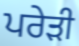
ਪਰੇੜੀ